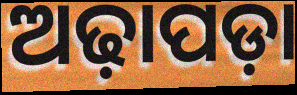
ଅଢ଼ାପଡ଼ା